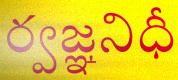
ర్వజ్ఞనిధీ